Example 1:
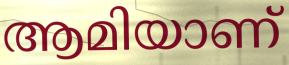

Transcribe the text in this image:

ആമിയാണ്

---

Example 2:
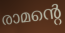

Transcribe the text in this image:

രാമന്റെ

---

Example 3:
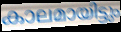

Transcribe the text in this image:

കാലമായിട്ടും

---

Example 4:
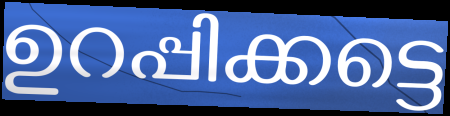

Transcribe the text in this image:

ഉറപ്പിക്കട്ടെ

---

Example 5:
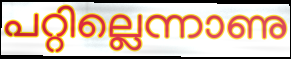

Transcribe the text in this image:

പറ്റില്ലെന്നാണു